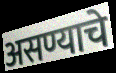
असण्याचे